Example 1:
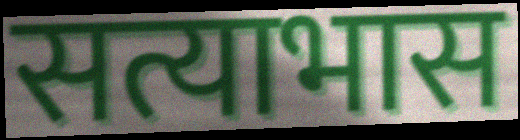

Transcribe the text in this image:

सत्याभास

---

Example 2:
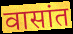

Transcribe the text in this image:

वासांत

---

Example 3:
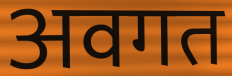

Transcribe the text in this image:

अवगत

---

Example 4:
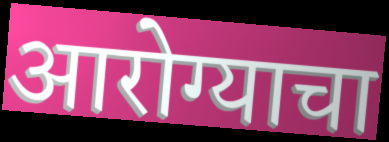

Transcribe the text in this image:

आरोग्याचा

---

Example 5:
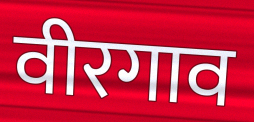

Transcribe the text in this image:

वीरगाव